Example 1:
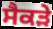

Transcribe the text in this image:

ਸੈਕੜੇ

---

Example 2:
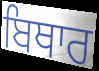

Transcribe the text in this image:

ਬਿਥਾਰ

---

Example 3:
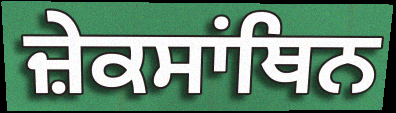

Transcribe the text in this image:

ਜ਼ੇਕਸਾਂਥਿਨ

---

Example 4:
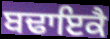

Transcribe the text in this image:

ਬਢਾਇਕੈ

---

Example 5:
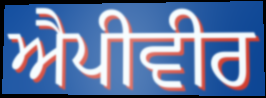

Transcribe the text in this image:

ਐਪੀਵੀਰ